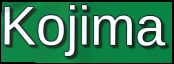
Kojima